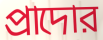
প্রাদোর